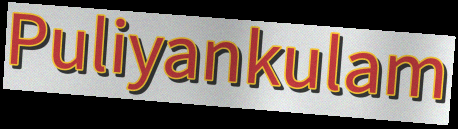
Puliyankulam